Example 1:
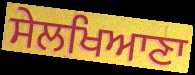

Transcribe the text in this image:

ਸੇਲਖਿਆਣਾ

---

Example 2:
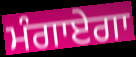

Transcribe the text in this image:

ਮੰਗਾਏਗਾ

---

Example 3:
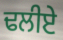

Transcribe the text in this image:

ਢਲੀਏ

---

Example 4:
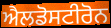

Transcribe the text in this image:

ਐਲਡੋਸਟੀਰੋਨ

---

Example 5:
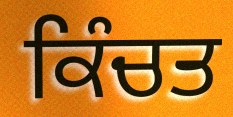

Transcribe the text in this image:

ਕਿੰਚਤ